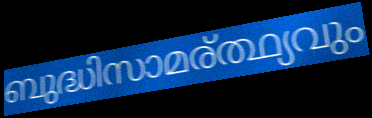
ബുദ്ധിസാമര്ത്ഥ്യവും